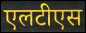
एलटीएस